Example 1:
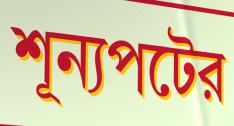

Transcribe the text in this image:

শূন্যপটের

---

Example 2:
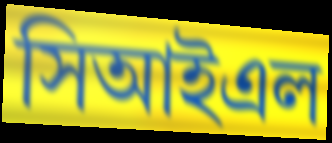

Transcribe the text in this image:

সিআইএল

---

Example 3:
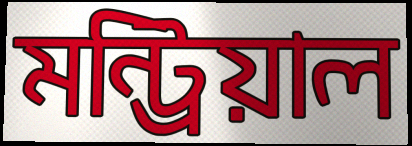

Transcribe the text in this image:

মন্ট্রিয়াল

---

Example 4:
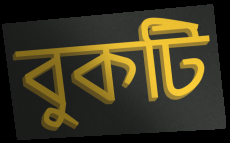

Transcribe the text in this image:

বুকটি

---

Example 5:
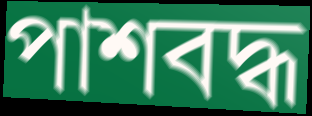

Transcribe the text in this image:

পাশবদ্ধ